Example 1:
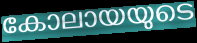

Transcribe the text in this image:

കോലായയുടെ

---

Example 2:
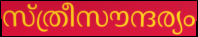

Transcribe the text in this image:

സ്ത്രീസൗന്ദര്യം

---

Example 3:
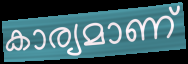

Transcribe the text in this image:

കാര്യമാണ്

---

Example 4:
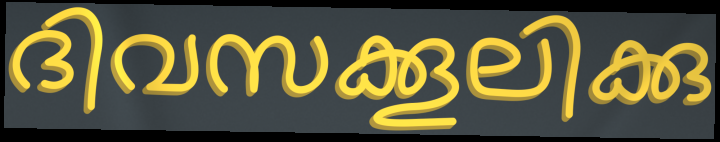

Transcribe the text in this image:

ദിവസക്കൂലിക്കു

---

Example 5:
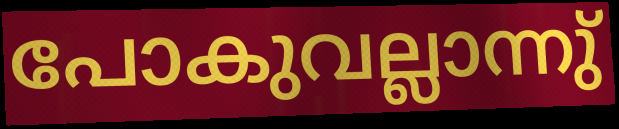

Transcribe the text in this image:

പോകുവല്ലാന്നു്